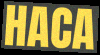
HACA